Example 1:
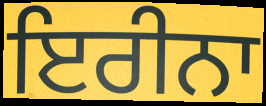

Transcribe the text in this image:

ਇਰੀਨਾ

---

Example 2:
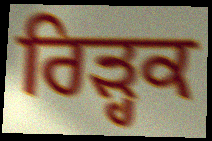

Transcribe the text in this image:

ਰਿੜ੍ਹਕ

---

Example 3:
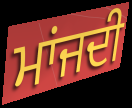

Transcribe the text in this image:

ਮਾਂਜਦੀ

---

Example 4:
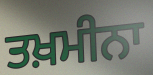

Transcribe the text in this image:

ਤਖ਼ਮੀਨਾ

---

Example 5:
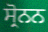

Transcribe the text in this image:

ਸ੍ਰੋਨਨ